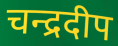
चन्द्रदीप